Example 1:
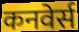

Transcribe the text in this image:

कनवेर्स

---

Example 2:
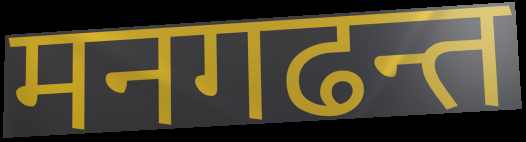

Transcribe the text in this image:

मनगढन्त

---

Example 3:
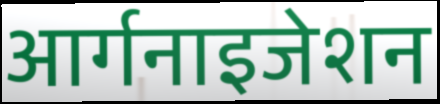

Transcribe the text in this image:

आर्गनाइजेशन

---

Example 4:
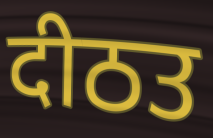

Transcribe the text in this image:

दीठउ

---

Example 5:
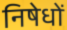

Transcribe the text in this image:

निषेधों